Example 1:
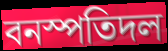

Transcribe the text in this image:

বনস্পতিদল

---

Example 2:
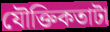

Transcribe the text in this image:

যৌক্তিকতাটা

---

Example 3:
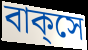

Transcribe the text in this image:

বাক্‌সে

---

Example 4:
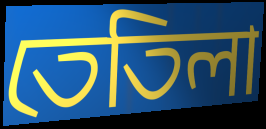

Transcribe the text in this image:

তেতিলা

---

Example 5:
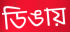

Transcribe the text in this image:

ডিঙায়